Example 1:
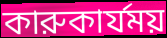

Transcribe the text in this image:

কারুকার্যময়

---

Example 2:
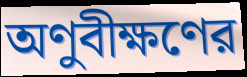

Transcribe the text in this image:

অণুবীক্ষণের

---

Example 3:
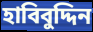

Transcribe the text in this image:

হাবিবুদ্দিন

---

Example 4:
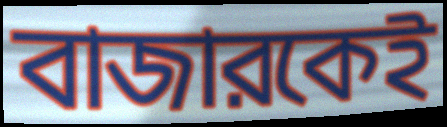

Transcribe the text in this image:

বাজারকেই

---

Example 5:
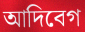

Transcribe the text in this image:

আদিবেগ